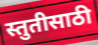
स्तुतीसाठी